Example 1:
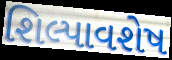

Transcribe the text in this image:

શિલ્પાવશેષ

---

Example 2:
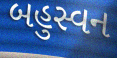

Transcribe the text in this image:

બહુસ્વન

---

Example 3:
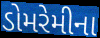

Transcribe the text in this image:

ડોમરેમીના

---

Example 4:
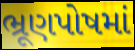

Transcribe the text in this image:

ભ્રૂણપોષમાં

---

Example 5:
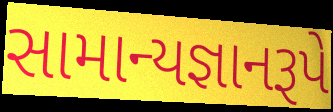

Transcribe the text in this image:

સામાન્યજ્ઞાનરૂપે